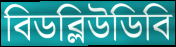
বিডব্লিউডিবি